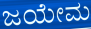
ಜಯೇಮ